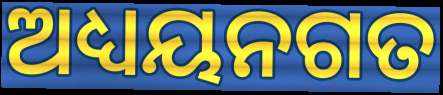
ଅଧ୍ୟୟନଗତ